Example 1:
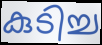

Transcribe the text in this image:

കുടിച്ച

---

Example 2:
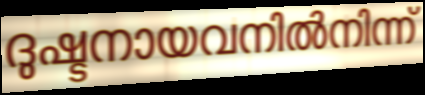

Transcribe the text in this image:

ദുഷ്ടനായവനിൽനിന്ന്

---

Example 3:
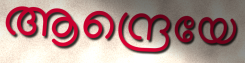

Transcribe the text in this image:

ആന്ദ്രെയേ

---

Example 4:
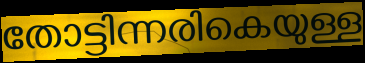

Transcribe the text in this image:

തോട്ടിന്നരികെയുള്ള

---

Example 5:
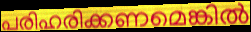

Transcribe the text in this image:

പരിഹരിക്കണമെങ്കിൽ